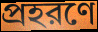
প্রহরণে